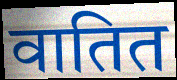
वातित